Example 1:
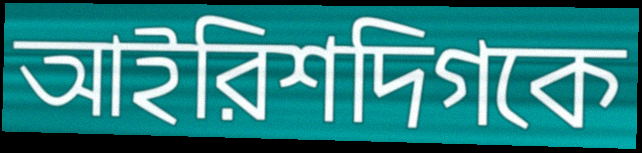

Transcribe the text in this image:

আইরিশদিগকে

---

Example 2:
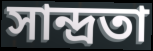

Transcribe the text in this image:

সান্দ্রতা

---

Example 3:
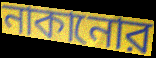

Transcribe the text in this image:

নাকানোর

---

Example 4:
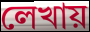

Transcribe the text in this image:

লেখায়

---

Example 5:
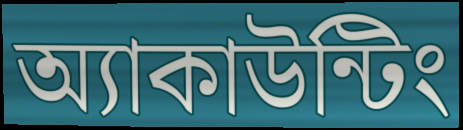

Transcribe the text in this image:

অ্যাকাউন্টিং